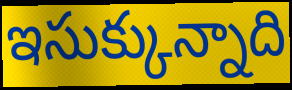
ఇసుక్కున్నాది